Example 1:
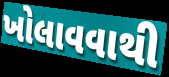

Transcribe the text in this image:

ખોલાવવાથી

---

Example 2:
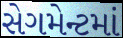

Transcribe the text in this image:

સેગમેન્ટમાં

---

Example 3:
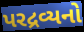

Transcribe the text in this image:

પરદ્રવ્યનો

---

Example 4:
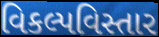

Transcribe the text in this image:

વિકલ્પવિસ્તાર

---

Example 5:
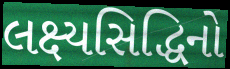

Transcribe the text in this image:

લક્ષ્યસિદ્ધિનો